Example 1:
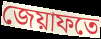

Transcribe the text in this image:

জেয়াফতে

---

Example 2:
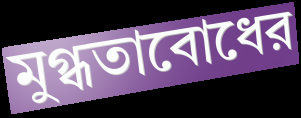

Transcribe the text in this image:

মুগ্ধতাবোধের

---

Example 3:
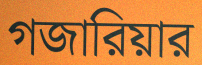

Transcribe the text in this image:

গজারিয়ার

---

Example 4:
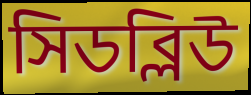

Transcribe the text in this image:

সিডব্লিউ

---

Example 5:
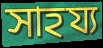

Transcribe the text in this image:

সাহয্য